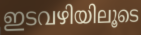
ഇടവഴിയിലൂടെ